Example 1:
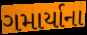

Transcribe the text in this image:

ગમાર્યાના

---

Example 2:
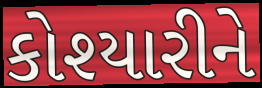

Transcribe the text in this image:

કોશ્યારીને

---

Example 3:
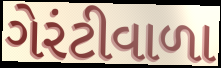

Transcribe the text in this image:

ગેરંટીવાળા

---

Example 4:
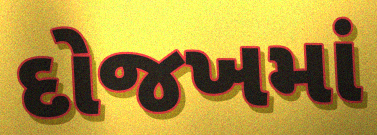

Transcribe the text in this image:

દોજખમાં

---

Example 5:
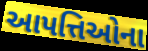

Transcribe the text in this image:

આપત્તિઓના